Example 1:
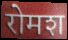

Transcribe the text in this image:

रोमश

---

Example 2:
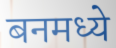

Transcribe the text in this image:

बनमध्ये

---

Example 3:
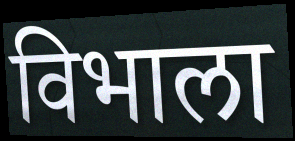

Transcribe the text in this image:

विभाला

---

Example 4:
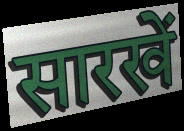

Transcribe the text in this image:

सारखें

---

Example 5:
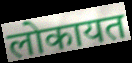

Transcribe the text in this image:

लोकायत